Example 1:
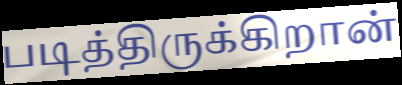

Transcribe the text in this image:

படித்திருக்கிறான்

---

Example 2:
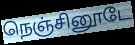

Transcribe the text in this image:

நெஞ்சினூடே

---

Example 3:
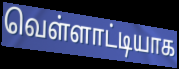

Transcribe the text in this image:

வெள்ளாட்டியாக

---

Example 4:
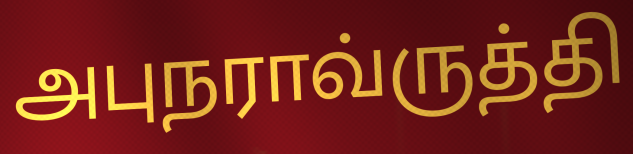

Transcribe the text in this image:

அபுநராவ்ருத்தி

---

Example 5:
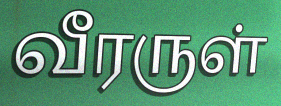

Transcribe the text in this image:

வீரருள்